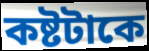
কষ্টটাকে